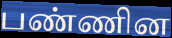
பண்ணின